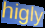
higly